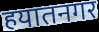
हयातनगर